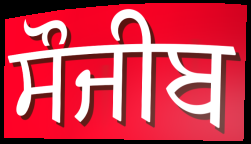
ਸੌਜੀਬ